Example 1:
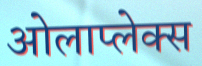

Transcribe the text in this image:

ओलाप्लेक्स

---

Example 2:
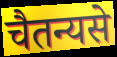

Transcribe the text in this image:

चैतन्यसे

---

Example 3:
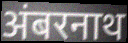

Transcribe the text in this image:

अंबरनाथ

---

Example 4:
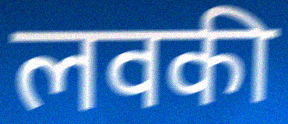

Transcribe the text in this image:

लवकी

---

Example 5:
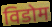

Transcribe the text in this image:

विडोम